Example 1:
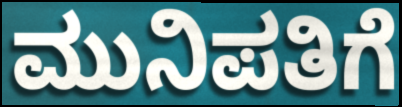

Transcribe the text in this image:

ಮುನಿಪತಿಗೆ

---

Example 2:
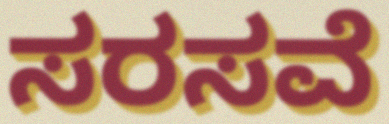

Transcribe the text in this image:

ಸರಸವೆ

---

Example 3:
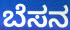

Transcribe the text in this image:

ಬೆಸನ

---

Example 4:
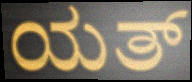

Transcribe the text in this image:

ಯತ್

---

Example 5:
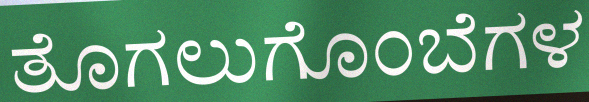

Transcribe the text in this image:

ತೊಗಲುಗೊಂಬೆಗಳ